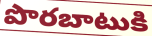
పొరబాటుకి